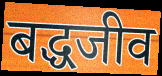
बद्धजीव